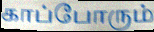
காப்போரும்